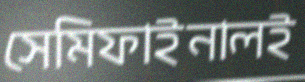
সেমিফাইনালই